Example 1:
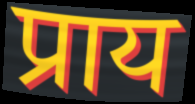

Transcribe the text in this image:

प्राय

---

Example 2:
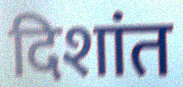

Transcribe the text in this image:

दिशांत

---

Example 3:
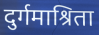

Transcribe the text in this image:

दुर्गमाश्रिता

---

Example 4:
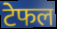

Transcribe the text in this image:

टेफल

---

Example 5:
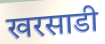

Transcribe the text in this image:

खरसाडी